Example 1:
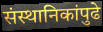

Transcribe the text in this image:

संस्थानिकांपुढे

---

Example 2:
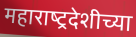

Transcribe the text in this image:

महाराष्ट्रदेशीच्या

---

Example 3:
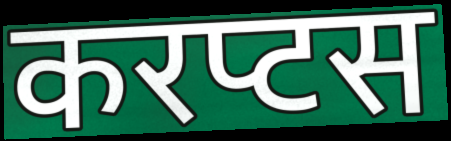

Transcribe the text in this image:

करप्टस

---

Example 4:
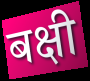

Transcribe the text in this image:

बक्षी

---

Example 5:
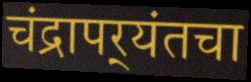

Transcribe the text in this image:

चंद्रापर्यंतचा